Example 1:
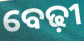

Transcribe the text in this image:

ବେଢ଼ୀ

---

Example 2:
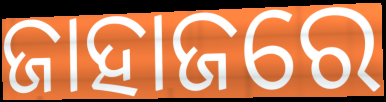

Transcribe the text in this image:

ଜାହାଜରେ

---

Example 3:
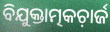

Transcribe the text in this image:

ବିଯୁକ୍ତାତ୍ମକଚ଼ାର୍ଜ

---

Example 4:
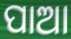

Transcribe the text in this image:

ପାଆ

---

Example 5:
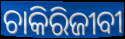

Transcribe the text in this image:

ଚାକିରିଜୀବୀ